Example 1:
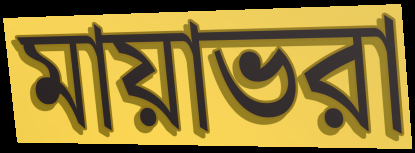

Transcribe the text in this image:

মায়াভরা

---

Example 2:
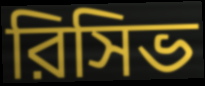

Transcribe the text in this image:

রিসিভ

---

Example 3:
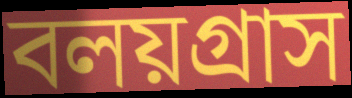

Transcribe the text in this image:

বলয়গ্রাস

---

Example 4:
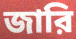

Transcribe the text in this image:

জারি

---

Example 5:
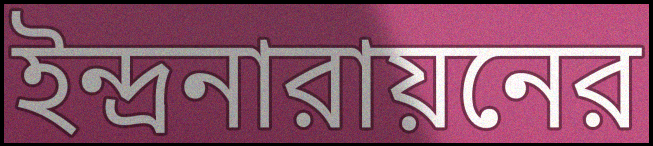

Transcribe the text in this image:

ইন্দ্রনারায়নের